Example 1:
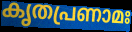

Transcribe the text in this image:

കൃതപ്രണാമഃ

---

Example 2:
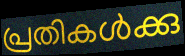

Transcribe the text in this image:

പ്രതികൾക്കു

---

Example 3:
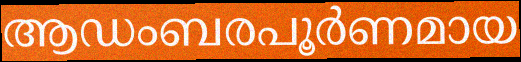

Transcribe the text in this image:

ആഡംബരപൂർണമായ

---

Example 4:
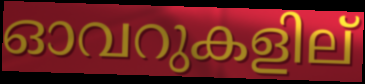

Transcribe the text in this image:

ഓവറുകളില്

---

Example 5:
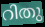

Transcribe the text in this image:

റിതു